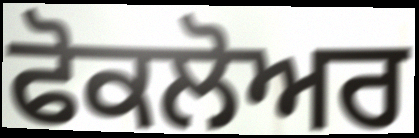
ਫੋਕਲੋਅਰ